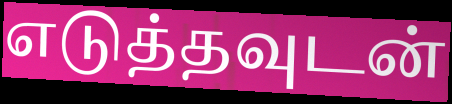
எடுத்தவுடன்